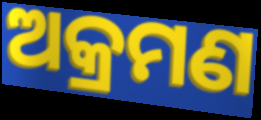
ଅକ୍ରମଣ